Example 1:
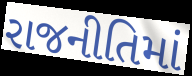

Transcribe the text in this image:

રાજનીતિમાં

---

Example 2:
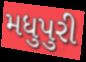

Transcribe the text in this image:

મધુપુરી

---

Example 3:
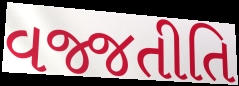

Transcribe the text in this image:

વજ્જતીતિ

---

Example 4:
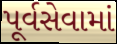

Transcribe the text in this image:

પૂર્વસેવામાં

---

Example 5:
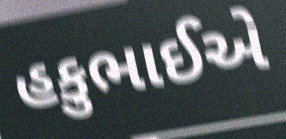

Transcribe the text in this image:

હકુભાઈએ